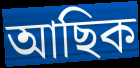
আছিক